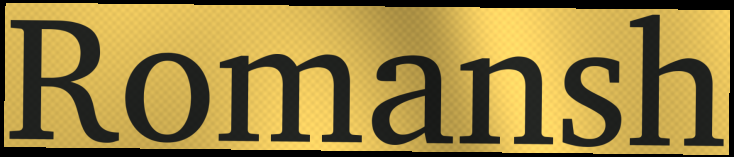
Romansh